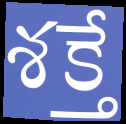
శక్తే